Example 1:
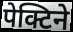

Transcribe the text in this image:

पेक्टिने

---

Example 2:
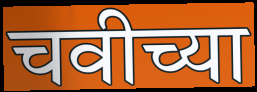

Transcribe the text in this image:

चवीच्या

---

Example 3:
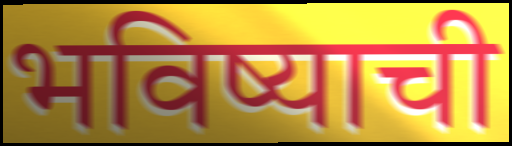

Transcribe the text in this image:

भविष्याची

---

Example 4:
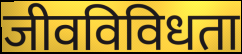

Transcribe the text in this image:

जीवविविधता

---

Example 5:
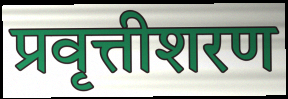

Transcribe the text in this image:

प्रवृत्तीशरण